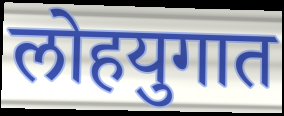
लोहयुगात